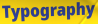
Typography